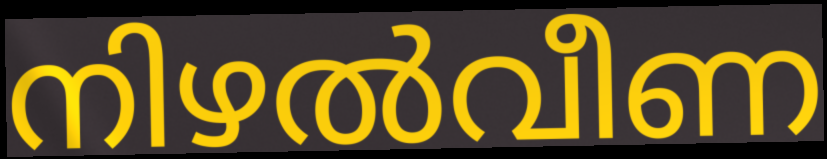
നിഴൽവീണ